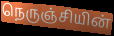
நெருஞ்சியின்